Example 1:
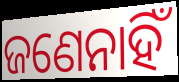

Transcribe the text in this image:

ଜଣେନାହିଁ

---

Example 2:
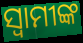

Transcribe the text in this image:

ସ୍ବାମୀଙ୍କ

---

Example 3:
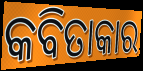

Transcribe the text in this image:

କବିତାକାର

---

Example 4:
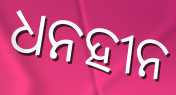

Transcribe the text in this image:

ଧନହୀନ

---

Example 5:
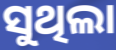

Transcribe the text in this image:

ସୁଥିଲା